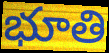
భూతి